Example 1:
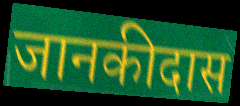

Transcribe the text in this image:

जानकीदास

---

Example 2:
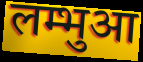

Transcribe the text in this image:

लम्भुआ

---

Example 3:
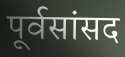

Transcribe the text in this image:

पूर्वसांसद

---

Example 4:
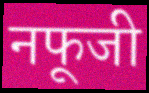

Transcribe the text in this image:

नफूजी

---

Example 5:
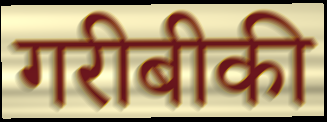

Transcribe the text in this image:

गरीबीकी